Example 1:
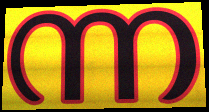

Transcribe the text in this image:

ന്ന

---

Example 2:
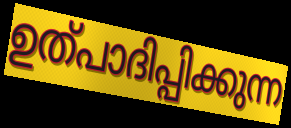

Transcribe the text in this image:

ഉത്പാദിപ്പിക്കുന്ന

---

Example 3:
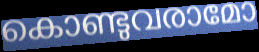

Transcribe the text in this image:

കൊണ്ടുവരാമോ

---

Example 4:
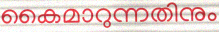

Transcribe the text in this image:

കൈമാറുന്നതിനും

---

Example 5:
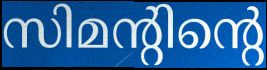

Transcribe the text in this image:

സിമന്റിന്റെ